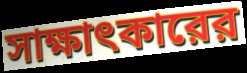
সাক্ষাৎকারের